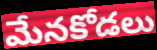
మేనకోడలు